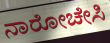
ನಾರೋಚೇಸಿ